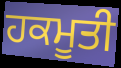
ਹਕਮੂਤੀ